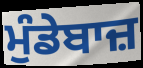
ਮੁੰਡੇਬਾਜ਼